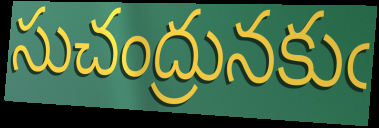
సుచంద్రునకుఁ